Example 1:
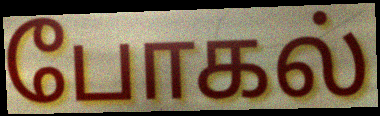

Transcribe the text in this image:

போகல்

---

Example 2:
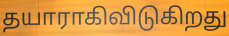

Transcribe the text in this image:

தயாராகிவிடுகிறது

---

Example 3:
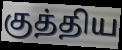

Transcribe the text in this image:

குத்திய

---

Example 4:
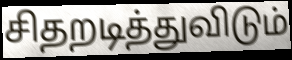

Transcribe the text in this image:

சிதறடித்துவிடும்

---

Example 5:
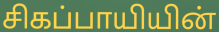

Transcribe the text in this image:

சிகப்பாயியின்